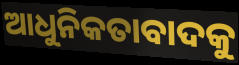
ଆଧୁନିକତାବାଦକୁ